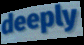
deeply